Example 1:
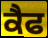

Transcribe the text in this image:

ਕੈਫ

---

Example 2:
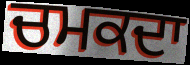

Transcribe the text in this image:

ਚਮਕਦਾ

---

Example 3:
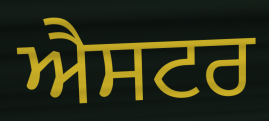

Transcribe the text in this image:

ਐਸਟਰ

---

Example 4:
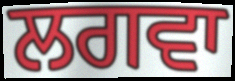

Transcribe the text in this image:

ਲਗਵਾ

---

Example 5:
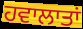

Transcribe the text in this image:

ਹਵਾਲਾਤਾਂ